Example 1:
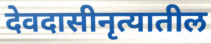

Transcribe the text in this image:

देवदासीनृत्यातील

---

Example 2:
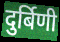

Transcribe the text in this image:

दुर्बिणी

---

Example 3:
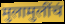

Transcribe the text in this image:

मुलामुलींचं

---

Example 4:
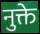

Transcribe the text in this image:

नुक्ते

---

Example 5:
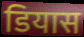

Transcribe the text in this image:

डियास